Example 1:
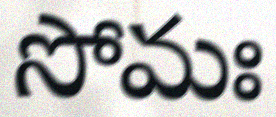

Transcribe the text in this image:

సోమః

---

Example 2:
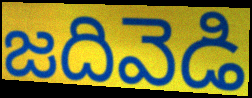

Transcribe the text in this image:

జదివెడి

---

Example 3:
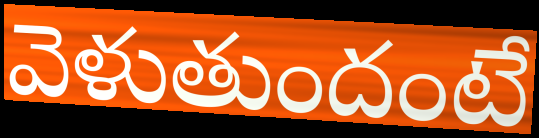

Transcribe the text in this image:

వెళుతుందంటే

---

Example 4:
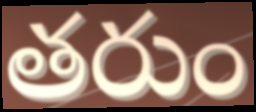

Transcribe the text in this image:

తరుం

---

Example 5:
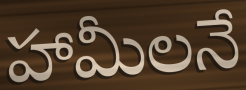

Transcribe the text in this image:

హామీలనే